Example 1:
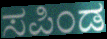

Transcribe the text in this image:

ಸಪಿಂಡ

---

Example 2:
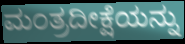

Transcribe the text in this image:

ಮಂತ್ರದೀಕ್ಷೆಯನ್ನು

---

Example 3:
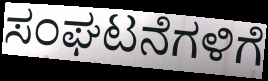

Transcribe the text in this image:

ಸಂಘಟನೆಗಳಿಗೆ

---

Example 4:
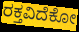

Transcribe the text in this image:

ರಕ್ತವಿದೆಕೋ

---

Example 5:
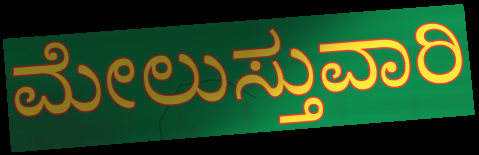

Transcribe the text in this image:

ಮೇಲುಸ್ತುವಾರಿ